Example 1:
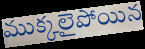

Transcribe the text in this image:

ముక్కలైపోయిన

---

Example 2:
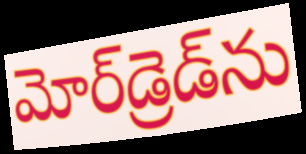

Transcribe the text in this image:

మోర్‌డ్రెడ్‌ను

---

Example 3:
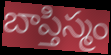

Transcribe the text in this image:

బాప్తిస్మం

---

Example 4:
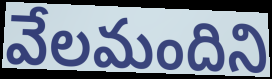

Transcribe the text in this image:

వేలమందిని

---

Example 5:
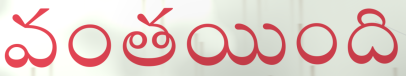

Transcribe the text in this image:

వంతయింది